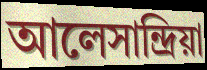
আলেসান্দ্রিয়া